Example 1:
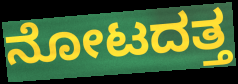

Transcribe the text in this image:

ನೋಟದತ್ತ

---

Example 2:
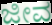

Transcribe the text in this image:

ಜೀವ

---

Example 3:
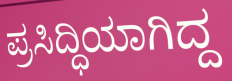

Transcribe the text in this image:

ಪ್ರಸಿದ್ಧಿಯಾಗಿದ್ದ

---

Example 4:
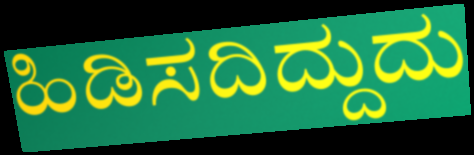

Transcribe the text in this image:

ಹಿಡಿಸದಿದ್ದುದು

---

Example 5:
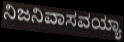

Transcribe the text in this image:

ನಿಜನಿವಾಸವಯ್ಯಾ